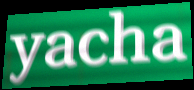
yacha